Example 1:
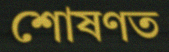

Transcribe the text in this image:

শোষণত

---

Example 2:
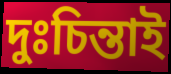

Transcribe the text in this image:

দুঃচিন্তাই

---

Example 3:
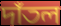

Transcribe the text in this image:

দাঁতল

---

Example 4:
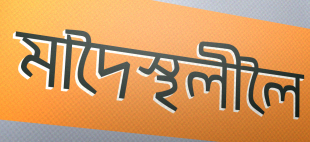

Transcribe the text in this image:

মাদৈস্থলীলৈ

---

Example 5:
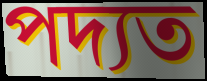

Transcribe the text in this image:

পদ্যত